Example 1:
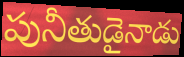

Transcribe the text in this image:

పునీతుడైనాడు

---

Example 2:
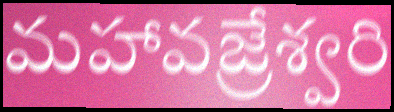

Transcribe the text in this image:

మహావజ్రేశ్వరి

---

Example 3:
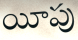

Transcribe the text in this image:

యీపు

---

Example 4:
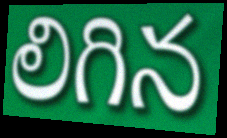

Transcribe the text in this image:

లిగిన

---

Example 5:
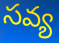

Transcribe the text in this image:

సవ్య